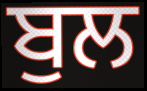
ਬੁਲ